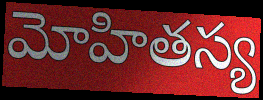
మోహితస్య